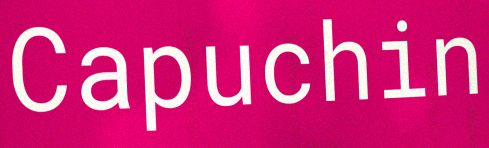
Capuchin